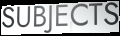
SUBJECTS